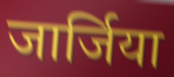
जार्जिया